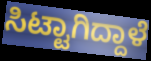
ಸಿಟ್ಟಾಗಿದ್ದಾಳೆ